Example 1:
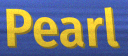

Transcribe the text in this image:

Pearl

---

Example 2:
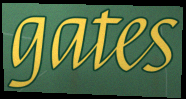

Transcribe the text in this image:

gates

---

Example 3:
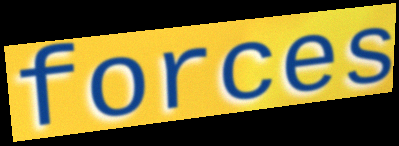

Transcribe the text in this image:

forces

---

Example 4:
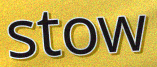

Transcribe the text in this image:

stow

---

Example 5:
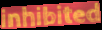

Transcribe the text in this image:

inhibited